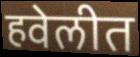
हवेलीत